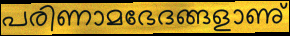
പരിണാമഭേദങ്ങളാണു്